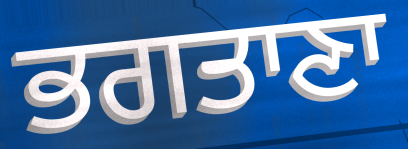
ਭਗਤਾਣਾ